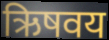
ऋिषवय